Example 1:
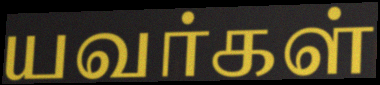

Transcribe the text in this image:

யவர்கள்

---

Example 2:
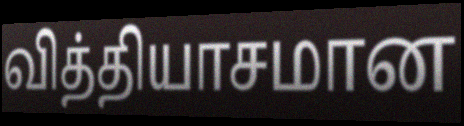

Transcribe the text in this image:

வித்தியாசமான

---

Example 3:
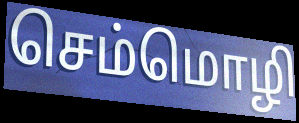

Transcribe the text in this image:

செம்மொழி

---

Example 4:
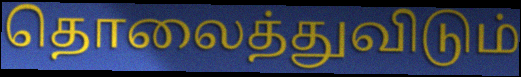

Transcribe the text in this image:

தொலைத்துவிடும்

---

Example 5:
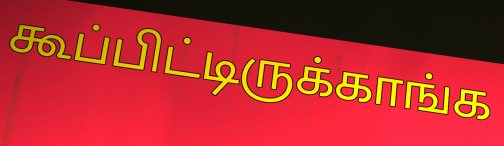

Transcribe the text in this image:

கூப்பிட்டிருக்காங்க